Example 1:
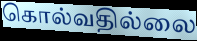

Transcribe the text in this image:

கொல்வதில்லை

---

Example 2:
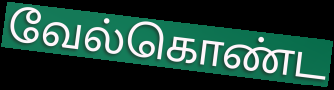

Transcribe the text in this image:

வேல்கொண்ட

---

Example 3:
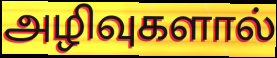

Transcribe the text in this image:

அழிவுகளால்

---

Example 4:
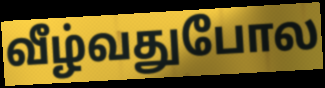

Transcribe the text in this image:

வீழ்வதுபோல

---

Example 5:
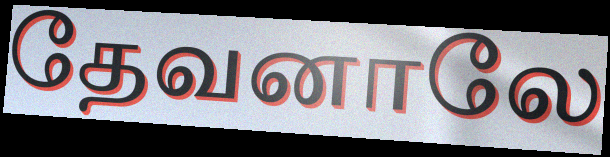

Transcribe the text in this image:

தேவனாலே